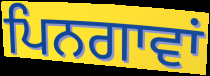
ਪਿਨਗਾਵਾਂ